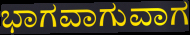
ಭಾಗವಾಗುವಾಗ